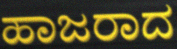
ಹಾಜರಾದ